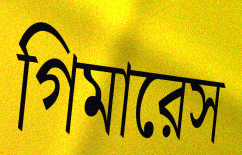
গিমারেস